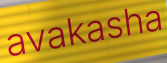
avakasha